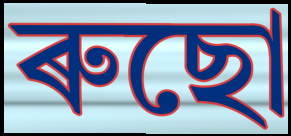
ৰুছো